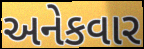
અનેકવાર